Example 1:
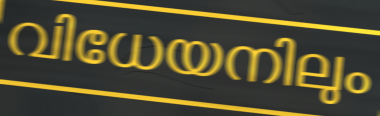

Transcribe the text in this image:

വിധേയനിലും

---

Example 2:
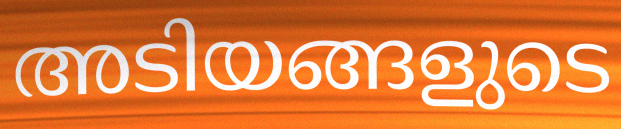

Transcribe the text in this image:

അടിയങ്ങളുടെ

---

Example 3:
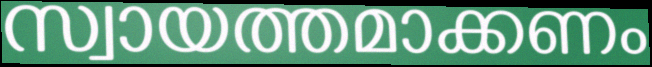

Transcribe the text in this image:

സ്വായത്തമാക്കണം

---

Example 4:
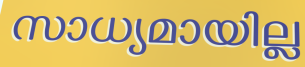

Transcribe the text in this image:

സാധ്യമായില്ല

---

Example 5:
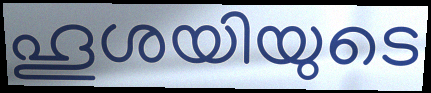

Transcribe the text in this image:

ഹൂശയിയുടെ